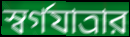
স্বর্গযাত্রার